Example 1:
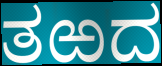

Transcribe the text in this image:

ತಱದ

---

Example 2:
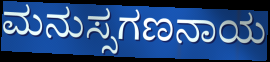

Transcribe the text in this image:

ಮನುಸ್ಸಗಣನಾಯ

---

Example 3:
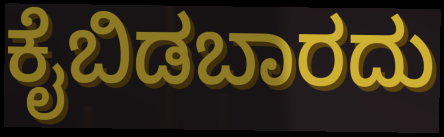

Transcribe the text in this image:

ಕೈಬಿಡಬಾರದು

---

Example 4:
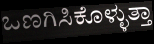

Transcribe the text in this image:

ಒಣಗಿಸಿಕೊಳ್ಳುತ್ತಾ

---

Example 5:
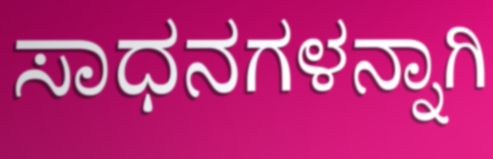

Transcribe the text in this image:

ಸಾಧನಗಳನ್ನಾಗಿ